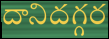
దానిదగ్గర